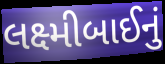
લક્ષ્મીબાઈનું